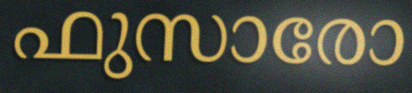
ഫുസാരോ